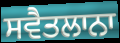
ਸਵੈਤਲਾਨਾ